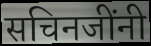
सचिनजींनी